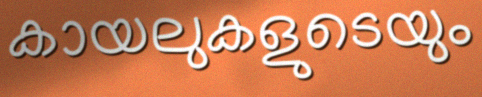
കായലുകളുടെയും